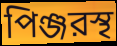
পিঞ্জরস্থ